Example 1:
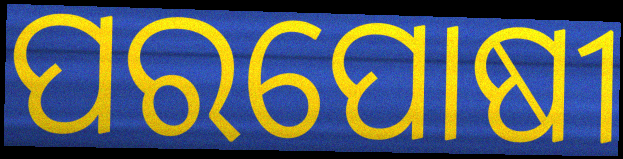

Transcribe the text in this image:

ପରପୋଷୀ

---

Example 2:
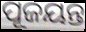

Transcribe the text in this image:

ପୂଜୟନ୍ତ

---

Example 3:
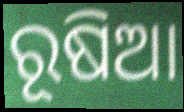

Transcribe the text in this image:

ରୂଷିଆ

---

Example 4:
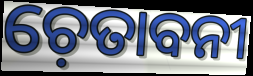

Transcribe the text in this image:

ଚ଼େତାବନୀ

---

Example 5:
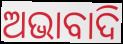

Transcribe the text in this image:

ଅଭାବାଦି